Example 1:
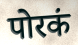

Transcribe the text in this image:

पोरकं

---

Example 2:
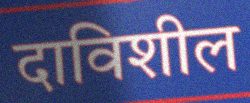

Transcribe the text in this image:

दाविशील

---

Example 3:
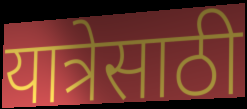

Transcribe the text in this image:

यात्रेसाठी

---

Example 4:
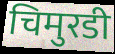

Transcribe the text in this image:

चिमुरडी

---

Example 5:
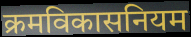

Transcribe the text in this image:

क्रमविकासनियम